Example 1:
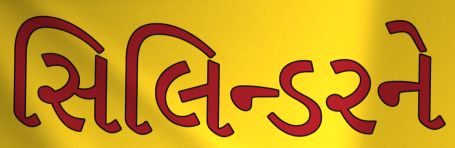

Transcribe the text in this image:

સિલિન્ડરને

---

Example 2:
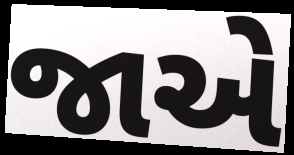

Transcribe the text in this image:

જાએ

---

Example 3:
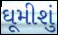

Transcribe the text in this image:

ઘૂમીશું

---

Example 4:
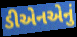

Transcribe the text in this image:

ડીએનએનું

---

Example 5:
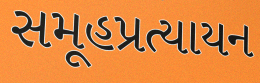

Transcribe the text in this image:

સમૂહપ્રત્યાયન